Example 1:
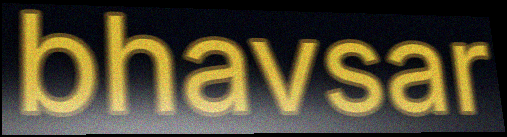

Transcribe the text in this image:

bhavsar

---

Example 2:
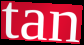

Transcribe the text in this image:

tan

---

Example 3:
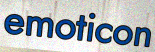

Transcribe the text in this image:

emoticon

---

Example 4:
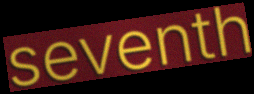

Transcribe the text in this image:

seventh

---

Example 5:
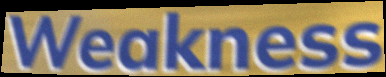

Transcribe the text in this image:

Weakness